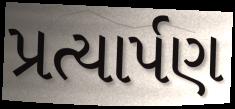
પ્રત્યાર્પણ